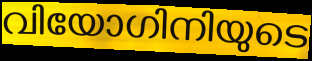
വിയോഗിനിയുടെ